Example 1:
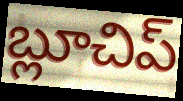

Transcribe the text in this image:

బ్లూచిప్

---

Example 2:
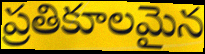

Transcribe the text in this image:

ప్రతికూలమైన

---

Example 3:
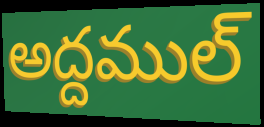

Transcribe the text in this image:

అద్దముల్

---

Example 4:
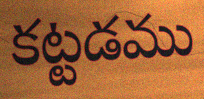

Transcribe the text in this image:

కట్టడము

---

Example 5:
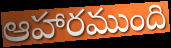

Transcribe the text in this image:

ఆహారముంది